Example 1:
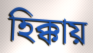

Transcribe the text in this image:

হিক্কায়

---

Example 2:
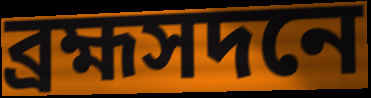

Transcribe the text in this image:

ব্রহ্মসদনে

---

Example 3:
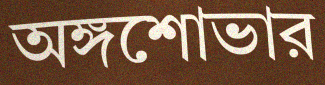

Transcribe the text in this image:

অঙ্গশোভার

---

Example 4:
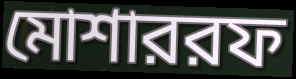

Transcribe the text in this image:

মোশাররফ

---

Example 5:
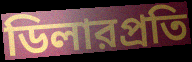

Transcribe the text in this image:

ডিলারপ্রতি